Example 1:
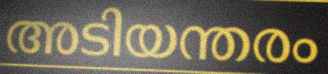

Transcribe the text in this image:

അടിയന്തരം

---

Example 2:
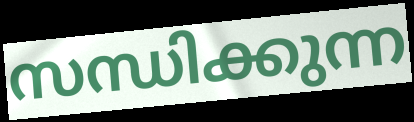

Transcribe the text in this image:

സന്ധിക്കുന്ന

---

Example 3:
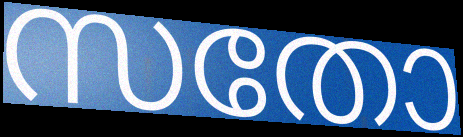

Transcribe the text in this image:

സതോ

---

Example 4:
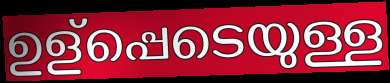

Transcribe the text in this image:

ഉള്പ്പെടെയുള്ള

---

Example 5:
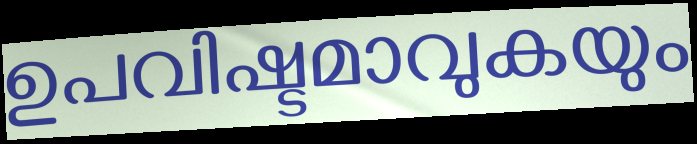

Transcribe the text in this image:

ഉപവിഷ്ടമാവുകയും